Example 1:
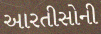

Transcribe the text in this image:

આરતીસોની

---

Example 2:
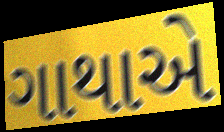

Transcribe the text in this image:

ગાથાએ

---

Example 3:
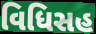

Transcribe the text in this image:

વિધિસહ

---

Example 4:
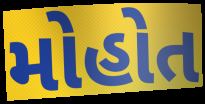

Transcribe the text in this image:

મોહોત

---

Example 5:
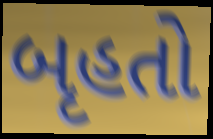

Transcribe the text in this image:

બૃહતો